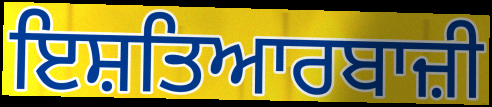
ਇਸ਼ਤਿਆਰਬਾਜ਼ੀ